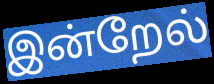
இன்றேல்